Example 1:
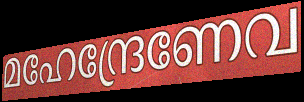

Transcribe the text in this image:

മഹേന്ദ്രേണേവ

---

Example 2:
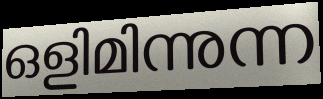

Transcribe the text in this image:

ഒളിമിന്നുന്ന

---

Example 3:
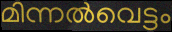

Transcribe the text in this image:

മിന്നൽവെട്ടം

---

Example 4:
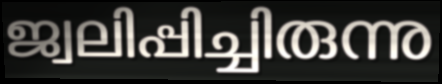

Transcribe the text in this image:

ജ്വലിപ്പിച്ചിരുന്നു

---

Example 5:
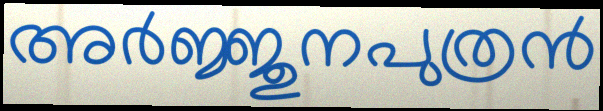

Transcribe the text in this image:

അർജ്ജുനപുത്രൻ